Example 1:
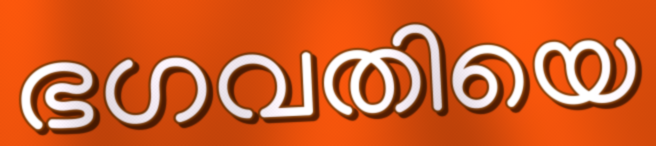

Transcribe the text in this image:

ഭഗവതിയെ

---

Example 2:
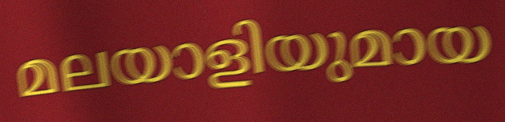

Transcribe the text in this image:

മലയാളിയുമായ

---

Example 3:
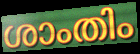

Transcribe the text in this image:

ശാംതിം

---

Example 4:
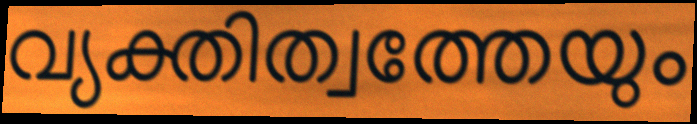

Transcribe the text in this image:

വ്യക്തിത്വത്തേയും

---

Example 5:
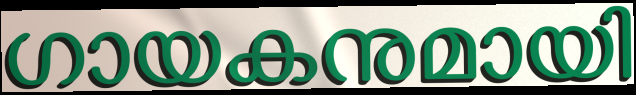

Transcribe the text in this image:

ഗായകനുമായി